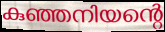
കുഞ്ഞനിയന്റെ